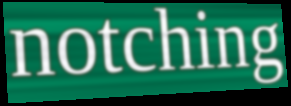
notching